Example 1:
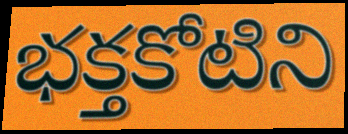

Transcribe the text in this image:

భక్తకోటిని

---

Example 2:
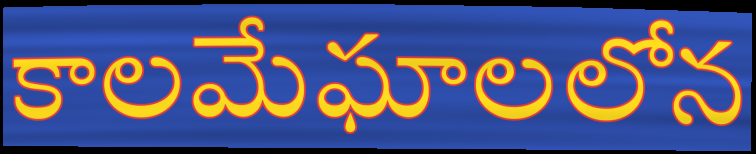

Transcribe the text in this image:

కాలమేఘాలలోన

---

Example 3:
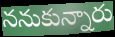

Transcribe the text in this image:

ననుకున్నారు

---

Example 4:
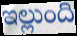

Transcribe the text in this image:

ఇల్లుంది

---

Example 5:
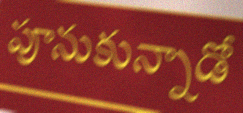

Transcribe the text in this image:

పూనుకున్నాడో